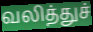
வலித்துச்